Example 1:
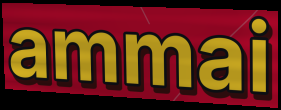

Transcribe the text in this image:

ammai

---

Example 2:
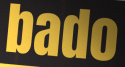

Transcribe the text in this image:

bado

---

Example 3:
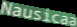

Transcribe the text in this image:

Nausicaa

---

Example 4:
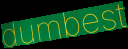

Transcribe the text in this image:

dumbest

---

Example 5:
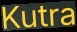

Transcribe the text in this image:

Kutra